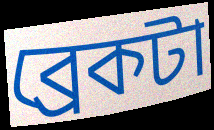
ব্রেকটা